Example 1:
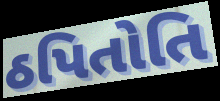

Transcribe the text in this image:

ઠપિતોતિ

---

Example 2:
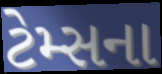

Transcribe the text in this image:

ટેમ્સના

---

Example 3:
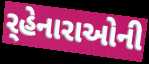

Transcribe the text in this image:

ર્‌હેનારાઓની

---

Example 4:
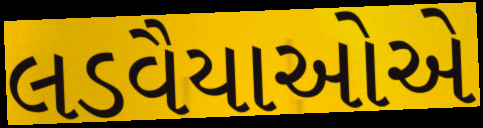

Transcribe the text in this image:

લડવૈયાઓએ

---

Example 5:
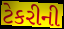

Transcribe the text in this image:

ટેકરીની